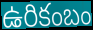
ఉరికంబం